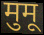
मुमू